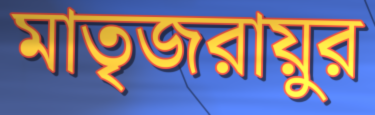
মাতৃজরায়ুর